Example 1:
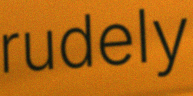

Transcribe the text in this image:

rudely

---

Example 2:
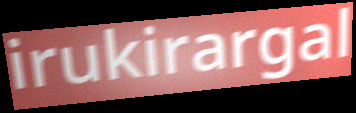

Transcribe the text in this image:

irukirargal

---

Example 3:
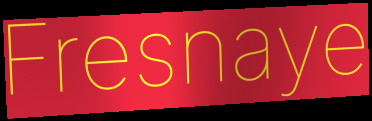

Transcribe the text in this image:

Fresnaye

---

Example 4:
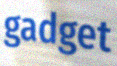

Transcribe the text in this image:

gadget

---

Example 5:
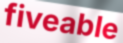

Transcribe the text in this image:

fiveable